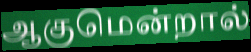
ஆகுமென்றால்